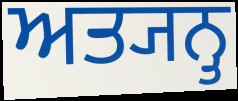
ਅਤ੍ਯਨ੍ਤ